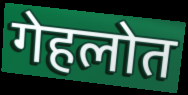
गेहलोत